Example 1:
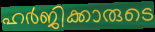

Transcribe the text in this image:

ഹർജിക്കാരുടെ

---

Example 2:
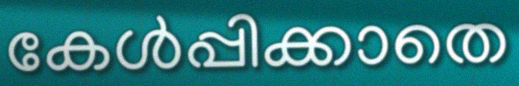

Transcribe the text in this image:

കേൾപ്പിക്കാതെ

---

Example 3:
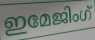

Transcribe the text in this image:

ഇമേജിംഗ്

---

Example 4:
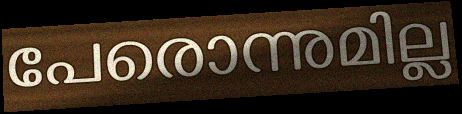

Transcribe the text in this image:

പേരൊന്നുമില്ല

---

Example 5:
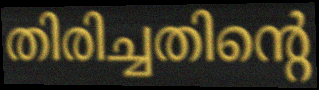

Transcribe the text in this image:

തിരിച്ചതിന്റെ